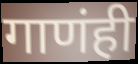
गाणंही